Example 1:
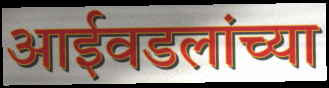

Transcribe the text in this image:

आईवडलांच्या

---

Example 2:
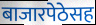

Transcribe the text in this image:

बाजारपेठेसह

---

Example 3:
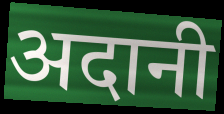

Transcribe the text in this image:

अदानी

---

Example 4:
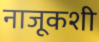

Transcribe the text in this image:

नाजूकशी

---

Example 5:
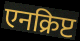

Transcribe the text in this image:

एनक्रिप्ट